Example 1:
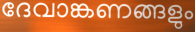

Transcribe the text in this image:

ദേവാങ്കണങ്ങളും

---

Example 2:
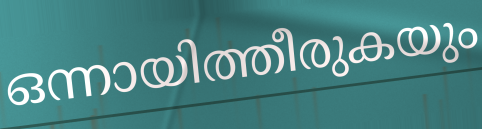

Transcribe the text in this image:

ഒന്നായിത്തീരുകയും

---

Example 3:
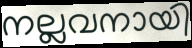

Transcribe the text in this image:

നല്ലവനായി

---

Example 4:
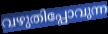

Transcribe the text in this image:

വഴുതിപ്പോവുന്ന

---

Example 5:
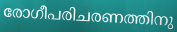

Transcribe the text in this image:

രോഗീപരിചരണത്തിനു